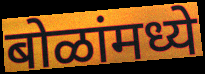
बोळांमध्ये